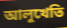
আলুখেতি